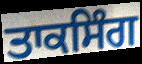
ਤਾਕਸਿੰਗ